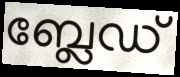
ബ്ലേഡ്